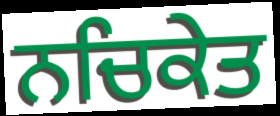
ਨਚਿਕੇਤ